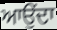
ਆਉੰਦਾ